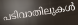
പടിവാതിലുകൾ